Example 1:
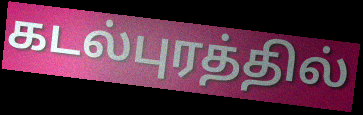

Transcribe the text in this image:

கடல்புரத்தில்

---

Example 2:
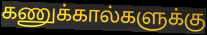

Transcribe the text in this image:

கணுக்கால்களுக்கு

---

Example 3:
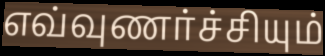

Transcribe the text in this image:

எவ்வுணர்ச்சியும்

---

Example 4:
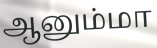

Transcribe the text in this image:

ஆனும்மா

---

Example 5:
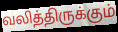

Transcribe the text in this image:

வலித்திருக்கும்